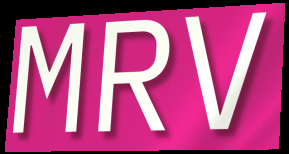
MRV